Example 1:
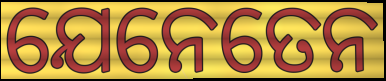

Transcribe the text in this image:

ଯେନେତେନ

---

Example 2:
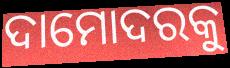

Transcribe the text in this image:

ଦାମୋଦରକୁ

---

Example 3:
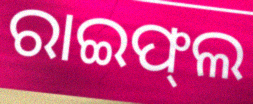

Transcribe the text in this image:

ରାଇଫ୍‌ଲ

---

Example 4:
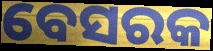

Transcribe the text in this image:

ବେସରକ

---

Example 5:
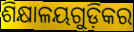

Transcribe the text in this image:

ଶିକ୍ଷାଳୟଗୁଡ଼ିକର